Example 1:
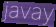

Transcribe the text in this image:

javay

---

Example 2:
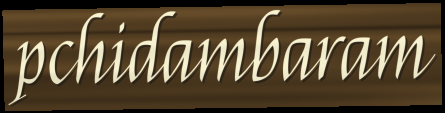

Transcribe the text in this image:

pchidambaram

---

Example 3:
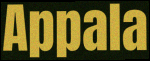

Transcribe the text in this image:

Appala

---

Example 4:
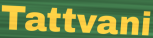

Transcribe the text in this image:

Tattvani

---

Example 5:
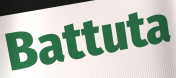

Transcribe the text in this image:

Battuta